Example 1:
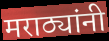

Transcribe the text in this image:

मराठ्यांनी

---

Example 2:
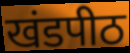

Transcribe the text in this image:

खंडपीठ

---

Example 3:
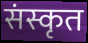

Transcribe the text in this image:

संस्‍कृत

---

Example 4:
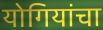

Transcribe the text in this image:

योगियांचा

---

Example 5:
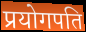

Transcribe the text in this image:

प्रयोगपति